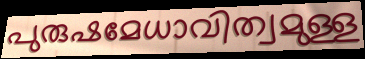
പുരുഷമേധാവിത്വമുള്ള